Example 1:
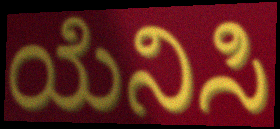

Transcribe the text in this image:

ಯೆನಿಸಿ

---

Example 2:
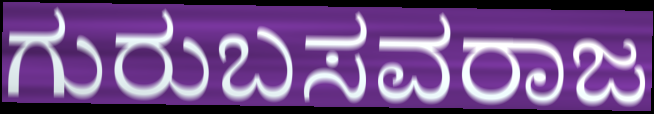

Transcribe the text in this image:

ಗುರುಬಸವರಾಜ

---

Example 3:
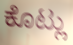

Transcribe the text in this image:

ಕೊಟ್ಲು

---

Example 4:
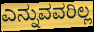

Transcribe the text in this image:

ಎನ್ನುವವರಿಲ್ಲ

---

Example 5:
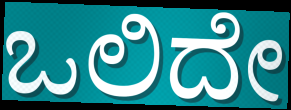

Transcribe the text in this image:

ಒಲಿದೇ